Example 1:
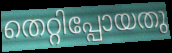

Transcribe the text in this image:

തെറ്റിപ്പോയതു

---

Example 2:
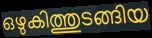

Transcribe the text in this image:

ഒഴുകിത്തുടങ്ങിയ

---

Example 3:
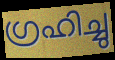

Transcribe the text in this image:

ഗ്രഹിച്ചു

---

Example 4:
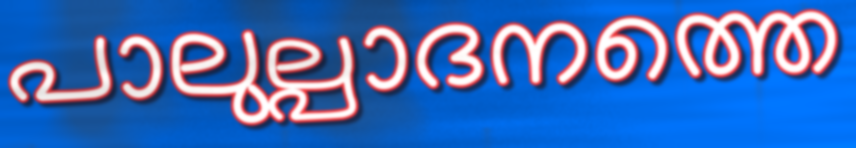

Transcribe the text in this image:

പാലുല്പാദനത്തെ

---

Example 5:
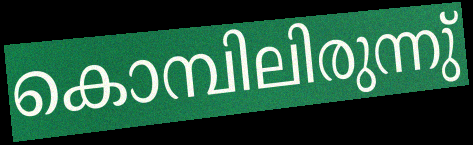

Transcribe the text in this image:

കൊമ്പിലിരുന്നു്